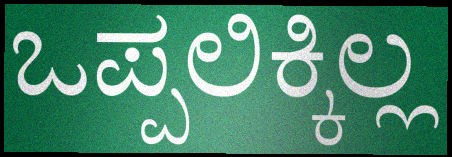
ಒಪ್ಪಲಿಕ್ಕಿಲ್ಲ